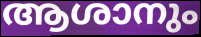
ആശാനും